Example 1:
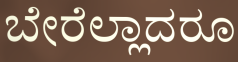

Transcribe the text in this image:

ಬೇರೆಲ್ಲಾದರೂ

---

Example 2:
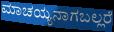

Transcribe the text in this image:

ಮಾಚಯ್ಯನಾಗಬಲ್ಲರೆ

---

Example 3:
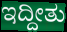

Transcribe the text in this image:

ಇದ್ದೀತು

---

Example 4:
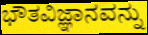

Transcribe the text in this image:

ಭೌತವಿಜ್ಞಾನವನ್ನು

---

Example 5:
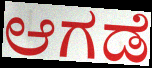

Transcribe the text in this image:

ಆಗಡೆ